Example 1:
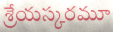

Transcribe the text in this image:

శ్రేయస్కరమూ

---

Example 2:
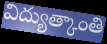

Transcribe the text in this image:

విద్యుత్కాంతి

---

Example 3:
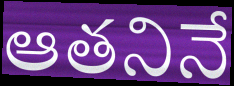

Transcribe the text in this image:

ఆతనినే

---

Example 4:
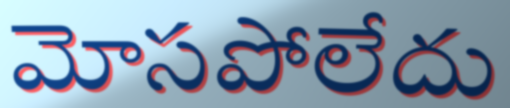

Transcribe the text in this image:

మోసపోలేదు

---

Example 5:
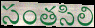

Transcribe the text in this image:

సంతసిలి